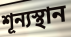
শূন্যস্থান